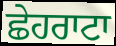
ਛੇਹਰਾਟਾ